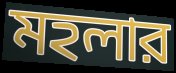
মহলার